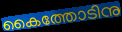
കൈത്തോടിനു